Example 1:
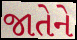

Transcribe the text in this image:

જાતેને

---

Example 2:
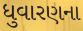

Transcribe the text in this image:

ધુવારણના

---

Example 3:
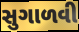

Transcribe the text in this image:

સુગાળવી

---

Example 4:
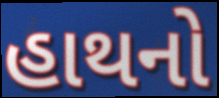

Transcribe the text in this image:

હાથનો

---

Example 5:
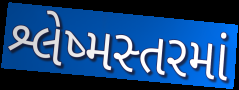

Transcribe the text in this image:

શ્લેષ્મસ્તરમાં